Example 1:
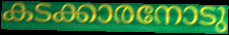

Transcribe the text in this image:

കടക്കാരനോടു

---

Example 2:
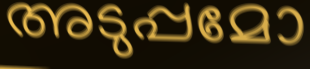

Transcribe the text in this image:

അടുപ്പമോ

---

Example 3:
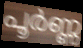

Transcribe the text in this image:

പൂർണ്ണ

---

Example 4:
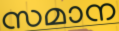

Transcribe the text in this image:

സമാന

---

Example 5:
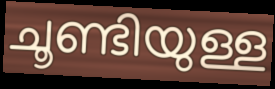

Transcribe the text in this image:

ചൂണ്ടിയുള്ള